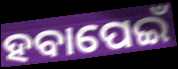
ହବାପେଇଁ